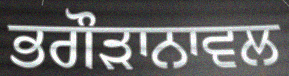
ਭਗੌੜਾਨਾਵਲ